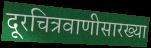
दूरचित्रवाणीसारख्या